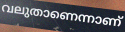
വലുതാണെന്നാണ്